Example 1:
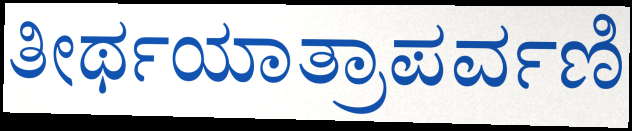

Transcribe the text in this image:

ತೀರ್ಥಯಾತ್ರಾಪರ್ವಣಿ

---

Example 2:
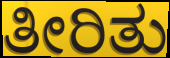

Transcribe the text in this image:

ತೀರಿತು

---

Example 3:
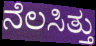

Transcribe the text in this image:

ನೆಲಸಿತ್ತು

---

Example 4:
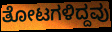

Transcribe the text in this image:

ತೋಟಗಳಿದ್ದವು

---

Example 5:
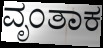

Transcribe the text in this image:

ವೃಂತಾಕ